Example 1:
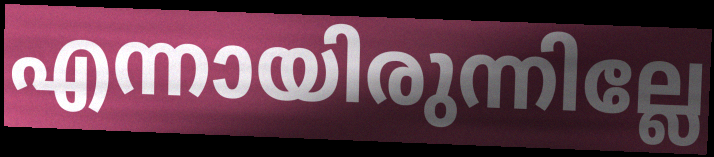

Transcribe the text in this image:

എന്നായിരുന്നില്ലേ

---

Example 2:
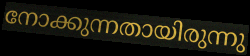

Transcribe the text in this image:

നോക്കുന്നതായിരുന്നു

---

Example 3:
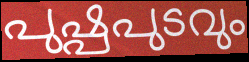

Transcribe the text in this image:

പുഷ്പപുടവും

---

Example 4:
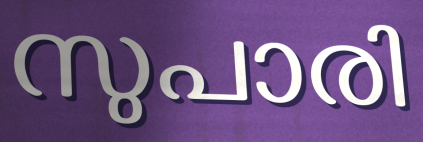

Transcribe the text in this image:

സുപാരി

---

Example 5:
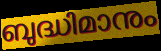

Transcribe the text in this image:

ബുദ്ധിമാനും